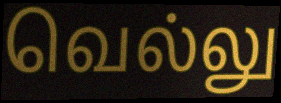
வெல்லு